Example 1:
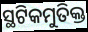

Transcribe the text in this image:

ସ୍ଥଟିକମୁତିକ୍ତ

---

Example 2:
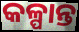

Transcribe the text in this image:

କଳ୍ପାନ୍ତ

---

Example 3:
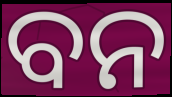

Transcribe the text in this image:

ବନ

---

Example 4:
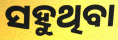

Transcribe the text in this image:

ସହୁଥିବା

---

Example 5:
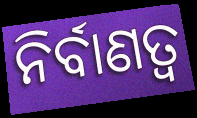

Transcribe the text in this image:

ନିର୍ବାଣତ୍ୱ